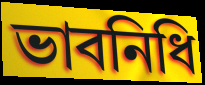
ভাবনিধি